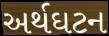
અર્થઘટન